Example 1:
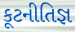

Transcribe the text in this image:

કૂટનીતિજ્ઞ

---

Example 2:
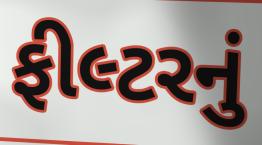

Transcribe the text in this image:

ફીલ્ટરનું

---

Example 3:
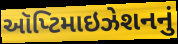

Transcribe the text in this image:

ઑપ્ટિમાઇઝેશનનું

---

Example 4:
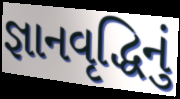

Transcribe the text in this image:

જ્ઞાનવૃદ્ધિનું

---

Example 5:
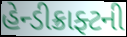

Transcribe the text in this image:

હેન્ડીક્રાફ્ટની